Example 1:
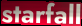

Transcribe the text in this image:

starfall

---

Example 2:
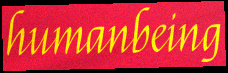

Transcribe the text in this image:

humanbeing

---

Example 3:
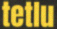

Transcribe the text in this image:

tetlu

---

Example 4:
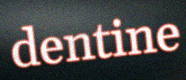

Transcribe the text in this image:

dentine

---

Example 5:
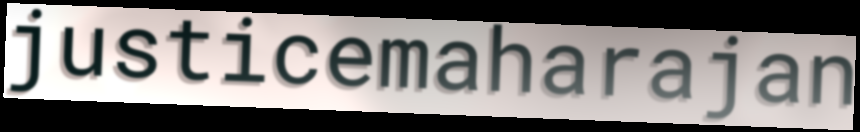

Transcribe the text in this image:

justicemaharajan